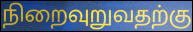
நிறைவுறுவதற்கு